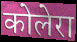
कोलेरा